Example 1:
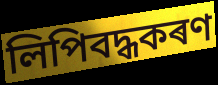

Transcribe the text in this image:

লিপিবদ্ধকৰণ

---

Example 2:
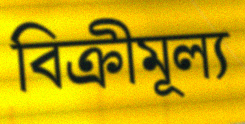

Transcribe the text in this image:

বিক্ৰীমূল্য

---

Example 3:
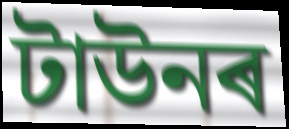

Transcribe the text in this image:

টাউনৰ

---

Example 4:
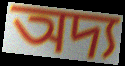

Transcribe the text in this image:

অদ্য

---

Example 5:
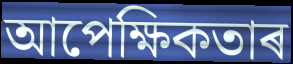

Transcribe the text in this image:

আপেক্ষিকতাৰ